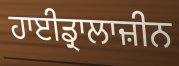
ਹਾਈਡ੍ਰਾਲਾਜ਼ੀਨ